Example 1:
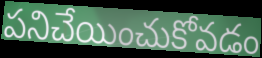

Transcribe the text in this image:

పనిచేయించుకోవడం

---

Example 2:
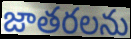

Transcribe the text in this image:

జాతరలను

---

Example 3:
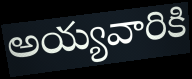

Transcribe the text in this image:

అయ్యవారికి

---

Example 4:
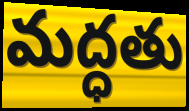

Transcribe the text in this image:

మద్ధతు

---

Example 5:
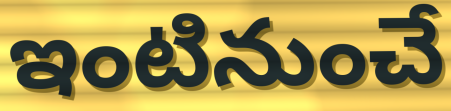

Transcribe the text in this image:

ఇంటినుంచే